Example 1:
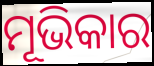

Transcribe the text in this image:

ମୂଭିକାର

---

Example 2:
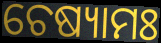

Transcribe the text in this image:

ଚେଷ୍ୟାମଃ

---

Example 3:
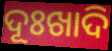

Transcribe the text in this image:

ଦୂଃଖାଦି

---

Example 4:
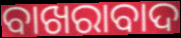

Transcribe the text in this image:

ବାଖରାବାଦ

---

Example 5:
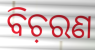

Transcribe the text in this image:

ବିଚ଼ରଣ